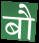
बौ